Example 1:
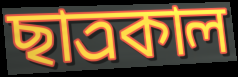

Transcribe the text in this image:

ছাত্রকাল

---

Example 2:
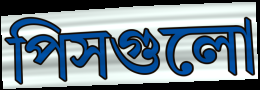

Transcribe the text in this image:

পিসগুলো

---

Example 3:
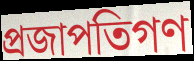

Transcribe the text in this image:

প্রজাপতিগণ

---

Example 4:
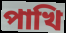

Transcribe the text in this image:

পাখি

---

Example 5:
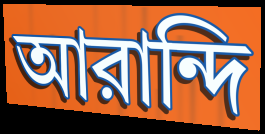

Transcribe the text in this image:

আরান্দি